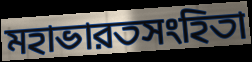
মহাভারতসংহিতা